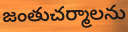
జంతుచర్మాలను